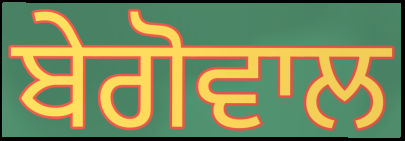
ਬੇਗੋਵਾਲ